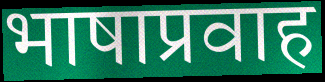
भाषाप्रवाह